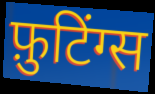
फ़ुटिंग्स